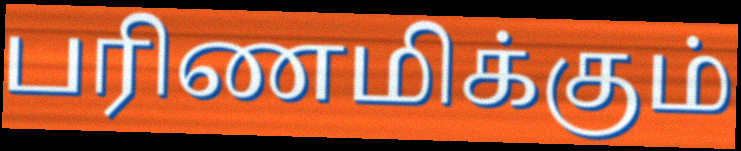
பரிணமிக்கும்